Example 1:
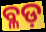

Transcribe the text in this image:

ବ୍ଳଡ଼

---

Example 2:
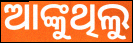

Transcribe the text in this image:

ଆଙ୍କୁଥିଲୁ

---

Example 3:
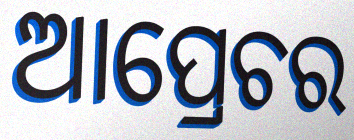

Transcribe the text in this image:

ଆପ୍ରେଚର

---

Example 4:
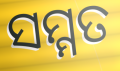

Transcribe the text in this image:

ସମ୍ମତ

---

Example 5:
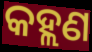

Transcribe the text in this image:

କହ୍ଲଣ